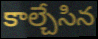
కాల్చేసిన